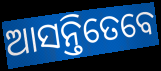
ଆସନ୍ତିତେବେ